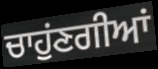
ਚਾਹੁਂਣਗੀਆਂ